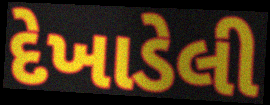
દેખાડેલી